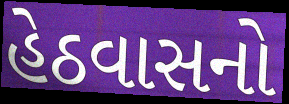
હેઠવાસનો